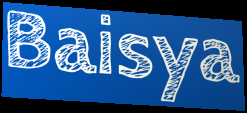
Baisya